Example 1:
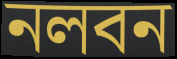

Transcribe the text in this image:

নলবন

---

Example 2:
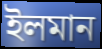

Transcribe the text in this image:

ইলমান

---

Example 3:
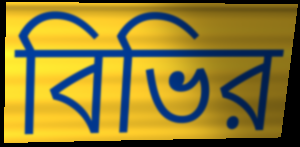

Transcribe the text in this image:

বিভির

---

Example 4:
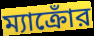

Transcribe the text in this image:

ম্যাক্রোঁর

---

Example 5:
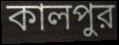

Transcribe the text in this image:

কালপুর